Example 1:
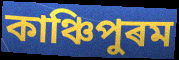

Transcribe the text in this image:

কাঞ্চিপুৰম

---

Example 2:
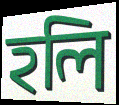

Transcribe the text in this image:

হলি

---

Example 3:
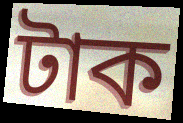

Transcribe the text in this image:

টাক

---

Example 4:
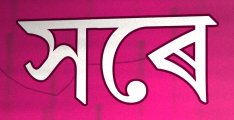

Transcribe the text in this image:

সৰে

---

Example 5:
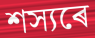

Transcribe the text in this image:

শস্যৰে